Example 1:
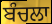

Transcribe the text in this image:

ਬੰਚਲਾ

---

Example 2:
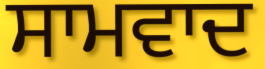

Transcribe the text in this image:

ਸਾਮਵਾਦ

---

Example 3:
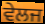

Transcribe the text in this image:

ਵੇਲਜ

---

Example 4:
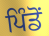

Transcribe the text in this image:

ਪਿੰਡੋਂ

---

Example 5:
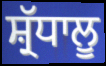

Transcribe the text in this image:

ਸ਼੍ਰੱਧਾਲੂ